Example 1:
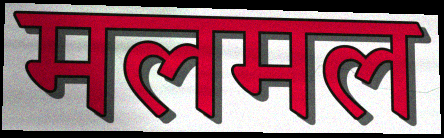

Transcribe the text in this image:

मलमल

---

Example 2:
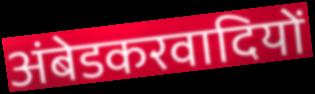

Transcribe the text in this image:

अंबेडकरवादियों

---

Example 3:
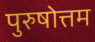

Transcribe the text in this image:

पुरुषोत्तम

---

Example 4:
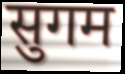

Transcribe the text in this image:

सुगम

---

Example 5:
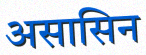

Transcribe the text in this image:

असासिन